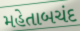
મહેતાબચંદ